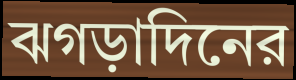
ঝগড়াদিনের